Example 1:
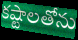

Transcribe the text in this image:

కష్టాలతోను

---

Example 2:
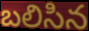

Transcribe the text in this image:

బలిసిన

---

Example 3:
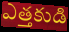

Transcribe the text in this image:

ఎత్తకుడి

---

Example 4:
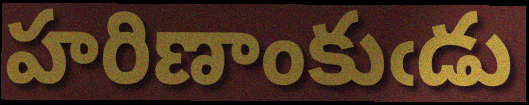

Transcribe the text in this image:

హరిణాంకుఁడు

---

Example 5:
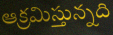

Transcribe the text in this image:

ఆక్రమిస్తున్నది